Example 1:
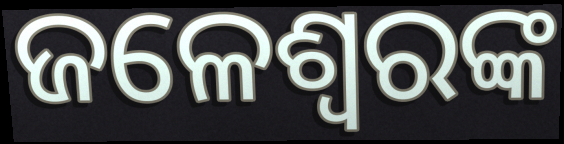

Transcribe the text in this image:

ଜଳେଶ୍ଵରଙ୍କ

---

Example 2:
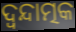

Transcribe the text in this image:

ଦ୍ଵନ୍ଦାତ୍ମକ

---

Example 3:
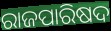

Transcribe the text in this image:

ରାଜପାରିଷଦ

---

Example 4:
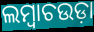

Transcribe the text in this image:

ଲମ୍ୱାଚଉଡ଼ା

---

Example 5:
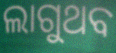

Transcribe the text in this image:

ଲାଗୁଥବ